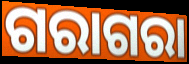
ଗରାଗରା